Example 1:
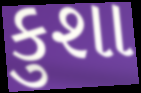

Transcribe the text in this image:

કુશા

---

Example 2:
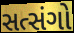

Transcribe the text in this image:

સત્સંગો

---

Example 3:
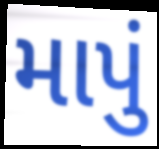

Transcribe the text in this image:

માપું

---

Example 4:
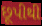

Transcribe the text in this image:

છૂપીથી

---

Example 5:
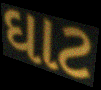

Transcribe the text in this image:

ઘાટ